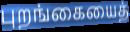
புறங்கையைத்